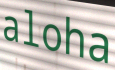
aloha